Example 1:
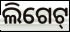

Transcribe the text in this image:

ଲିଗେଟ୍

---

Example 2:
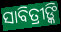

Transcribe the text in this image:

ସାବିତ୍ରୀଙ୍କି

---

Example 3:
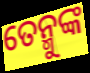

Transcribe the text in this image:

ତେନ୍ମୁଙ୍କ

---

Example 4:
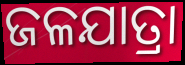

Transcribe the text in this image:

ଜଳଯାତ୍ରା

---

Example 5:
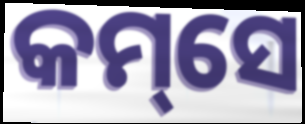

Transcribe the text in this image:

କମ୍‌ସେ